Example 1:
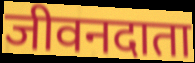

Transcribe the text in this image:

जीवनदाता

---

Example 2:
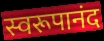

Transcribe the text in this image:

स्‍वरूपानंद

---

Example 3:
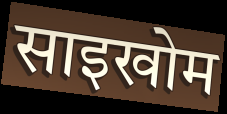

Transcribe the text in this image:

साइखोम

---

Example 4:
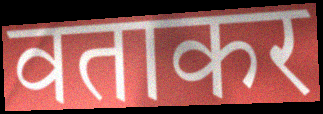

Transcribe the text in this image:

वताकर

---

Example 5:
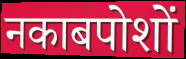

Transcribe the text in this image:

नकाबपोशों